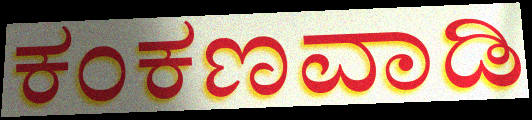
ಕಂಕಣವಾಡಿ